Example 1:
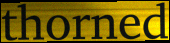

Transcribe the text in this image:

thorned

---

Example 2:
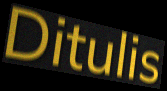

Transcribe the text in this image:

Ditulis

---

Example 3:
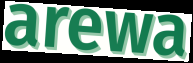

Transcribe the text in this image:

arewa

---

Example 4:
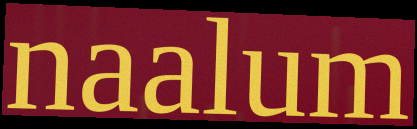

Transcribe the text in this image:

naalum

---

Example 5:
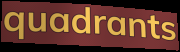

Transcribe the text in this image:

quadrants